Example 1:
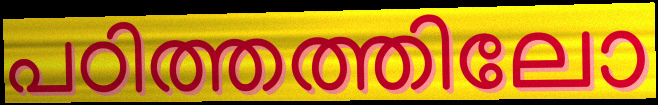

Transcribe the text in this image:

പഠിത്തത്തിലോ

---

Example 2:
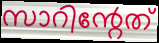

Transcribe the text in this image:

സാറിന്റേത്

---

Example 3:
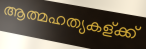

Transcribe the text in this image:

ആത്മഹത്യകള്ക്ക്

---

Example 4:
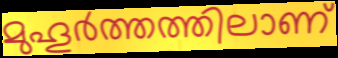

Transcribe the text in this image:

മുഹൂർത്തത്തിലാണ്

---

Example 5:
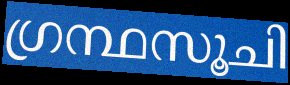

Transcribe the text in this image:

ഗ്രന്ഥസൂചി